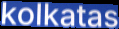
kolkatas